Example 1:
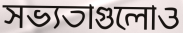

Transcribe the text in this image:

সভ্যতাগুলোও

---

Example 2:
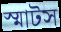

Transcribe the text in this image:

স্মাটস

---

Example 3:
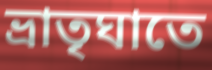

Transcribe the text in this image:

ভ্রাতৃঘাতে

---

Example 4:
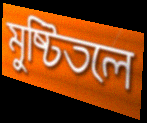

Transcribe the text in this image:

মুষ্টিতলে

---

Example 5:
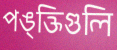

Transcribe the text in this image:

পঙ্‌ক্তিগুলি